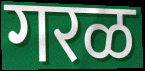
गरळ